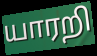
யாரறி